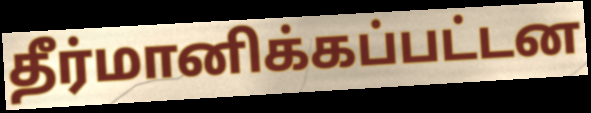
தீர்மானிக்கப்பட்டன